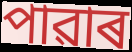
পাৱাৰ